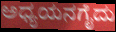
ಅಧ್ಯಯನಗೈದು